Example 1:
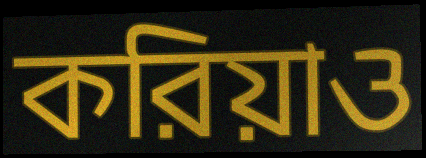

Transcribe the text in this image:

করিয়াও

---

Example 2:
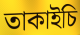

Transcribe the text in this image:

তাকাইচি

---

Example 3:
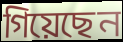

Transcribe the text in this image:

গিয়েছেন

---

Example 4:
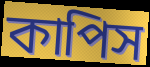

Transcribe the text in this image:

কাপিস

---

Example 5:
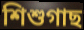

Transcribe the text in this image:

শিশুগাছ